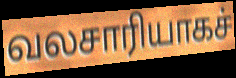
வலசாரியாகச்